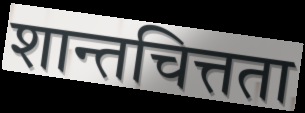
शान्तचित्तता